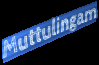
Muttulingam